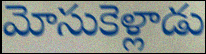
మోసుకెళ్లాడు